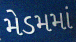
મેડમમાં